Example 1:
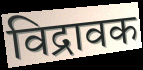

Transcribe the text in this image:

विद्रावक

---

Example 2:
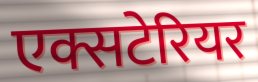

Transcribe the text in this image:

एक्सटेरियर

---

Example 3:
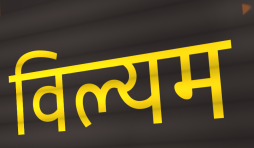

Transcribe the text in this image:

विल्यम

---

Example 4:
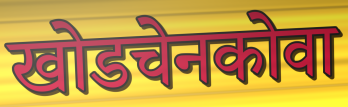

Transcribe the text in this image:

खोडचेनकोवा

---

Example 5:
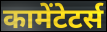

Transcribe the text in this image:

कामेंटेटर्स